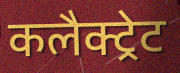
कलैक्ट्रेट